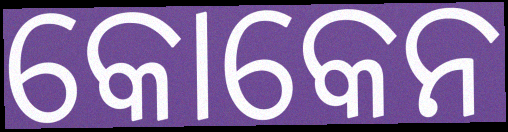
କୋକେନ